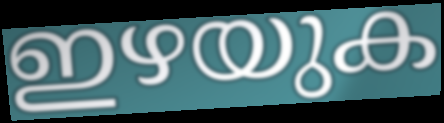
ഇഴയുക